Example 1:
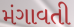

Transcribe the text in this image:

મંગાવતી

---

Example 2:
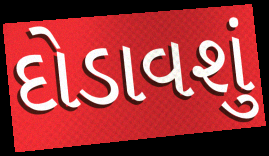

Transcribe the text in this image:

દોડાવશું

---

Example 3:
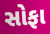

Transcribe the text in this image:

સોફા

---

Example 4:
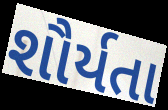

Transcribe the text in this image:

શૌર્યતા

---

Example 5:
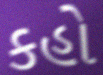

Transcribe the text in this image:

કહો